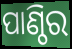
ପାଣ୍ଠିର